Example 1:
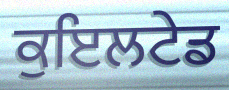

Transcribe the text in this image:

ਕੁਇਲਟੇਡ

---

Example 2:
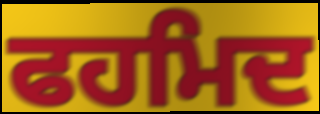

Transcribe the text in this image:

ਫਹਮਿਦ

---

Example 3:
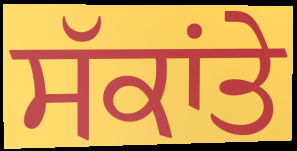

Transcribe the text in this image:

ਸੱਕਾਂਤੇ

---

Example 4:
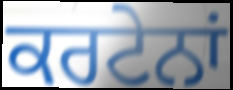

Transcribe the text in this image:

ਕਰਟੇਨਾਂ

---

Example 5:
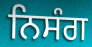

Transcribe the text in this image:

ਨਿਸੰਗ